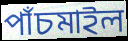
পাঁচমাইল